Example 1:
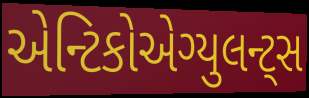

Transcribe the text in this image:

એન્ટિકોએગ્યુલન્ટ્સ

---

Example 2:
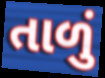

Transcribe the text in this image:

તાળું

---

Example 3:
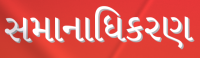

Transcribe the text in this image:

સમાનાધિકરણ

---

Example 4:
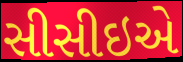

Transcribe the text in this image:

સીસીઇએ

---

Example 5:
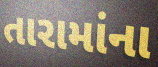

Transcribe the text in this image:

તારામાંના